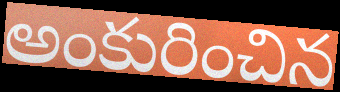
అంకురించిన